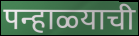
पन्हाळ्याची